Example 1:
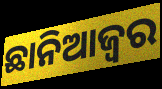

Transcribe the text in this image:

ଛାନିଆଜ୍ୱର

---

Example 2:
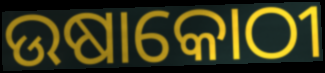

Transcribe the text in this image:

ଉଷାକୋଠୀ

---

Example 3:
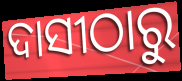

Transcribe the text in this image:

ଦାସୀଠାରୁ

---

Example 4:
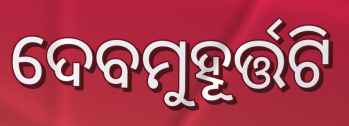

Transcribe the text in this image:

ଦେବମୁହୂର୍ତ୍ତଟି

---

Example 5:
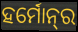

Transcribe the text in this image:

ହର୍ମୋନ୍‌ର